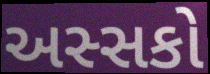
અસ્સકો